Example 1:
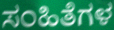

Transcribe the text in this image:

ಸಂಹಿತೆಗಳ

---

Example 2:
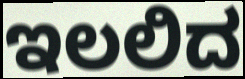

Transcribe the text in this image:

ಇಲಲಿದ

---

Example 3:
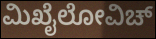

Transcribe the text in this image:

ಮಿಖೈಲೋವಿಚ್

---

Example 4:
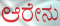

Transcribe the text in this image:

ಆರೇನು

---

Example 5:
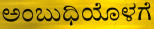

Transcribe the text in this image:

ಅಂಬುಧಿಯೊಳಗೆ